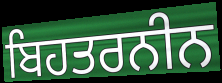
ਬਿਹਤਰਨੀਨ